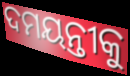
ଦମୟନ୍ତୀକୁ